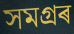
সমগ্ৰৰ